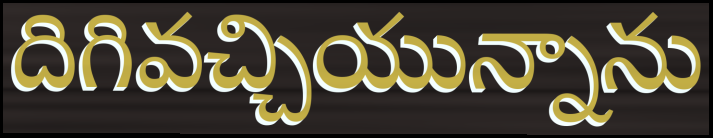
దిగివచ్చియున్నాను